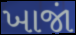
ખાજાં